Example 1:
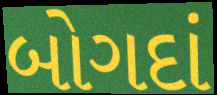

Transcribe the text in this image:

બોગદાં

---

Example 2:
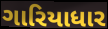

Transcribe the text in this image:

ગારિયાધાર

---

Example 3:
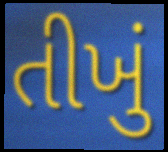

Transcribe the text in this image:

તીખું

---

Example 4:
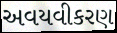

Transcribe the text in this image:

અવયવીકરણ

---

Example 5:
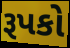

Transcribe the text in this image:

રૂપકો